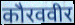
कौरववीर